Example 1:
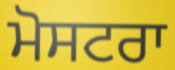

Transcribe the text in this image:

ਮੋਸਟਰਾ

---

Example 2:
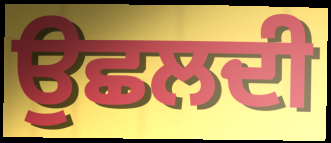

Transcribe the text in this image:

ਉਛਲਦੀ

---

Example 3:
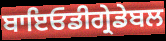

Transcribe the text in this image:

ਬਾਇਓਡੀਗ੍ਰੇਡੇਬਲ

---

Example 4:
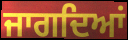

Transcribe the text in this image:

ਜਾਗਦਿਆਂ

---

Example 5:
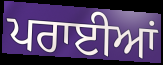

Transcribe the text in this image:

ਪਰਾਈਆਂ